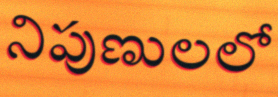
నిపుణులలో